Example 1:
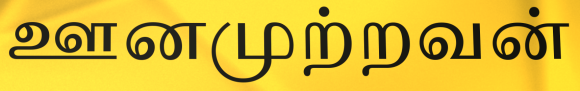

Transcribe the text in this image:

ஊனமுற்றவன்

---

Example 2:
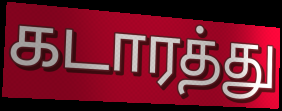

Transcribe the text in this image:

கடாரத்து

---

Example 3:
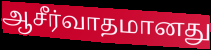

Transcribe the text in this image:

ஆசீர்வாதமானது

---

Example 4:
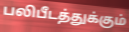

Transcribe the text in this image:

பலிபீடத்துக்கும்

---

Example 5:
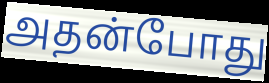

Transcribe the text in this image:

அதன்போது